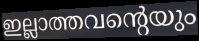
ഇല്ലാത്തവന്റെയും